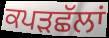
ਕਪੜਛੱਲਾਂ